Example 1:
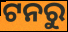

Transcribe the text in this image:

ଟନରୁ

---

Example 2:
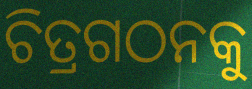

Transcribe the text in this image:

ଚିତ୍ରଗଠନକୁ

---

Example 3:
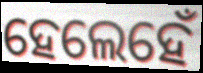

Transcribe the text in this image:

ହେଲେହେଁ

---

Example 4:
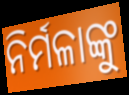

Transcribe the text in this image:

ନିର୍ମଳାଙ୍କୁ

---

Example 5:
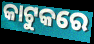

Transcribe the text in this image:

କାଟୁକରେ